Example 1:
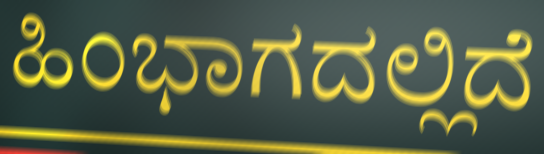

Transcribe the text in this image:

ಹಿಂಭಾಗದಲ್ಲಿದೆ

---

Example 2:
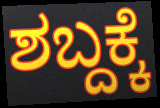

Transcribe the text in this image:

ಶಬ್ದಕ್ಕೆ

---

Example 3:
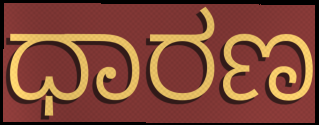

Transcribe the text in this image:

ಧಾರಣ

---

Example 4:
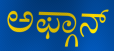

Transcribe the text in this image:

ಅಫ್ಗಾನ್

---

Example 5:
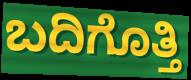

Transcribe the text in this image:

ಬದಿಗೊತ್ತಿ